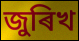
জুৰিখ